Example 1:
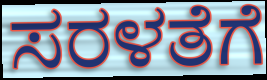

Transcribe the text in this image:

ಸರಳತೆಗೆ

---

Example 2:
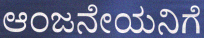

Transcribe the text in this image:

ಆಂಜನೇಯನಿಗೆ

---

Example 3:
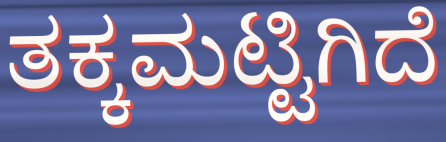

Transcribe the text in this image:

ತಕ್ಕಮಟ್ಟಿಗಿದೆ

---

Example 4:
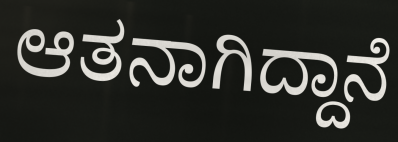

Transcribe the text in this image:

ಆತನಾಗಿದ್ದಾನೆ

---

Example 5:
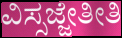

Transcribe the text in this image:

ವಿಸ್ಸಜ್ಜೇತೀತಿ